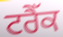
ਟਰੈੱਕ